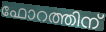
ഫോറത്തിന്